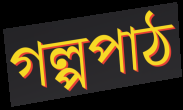
গল্পপাঠ